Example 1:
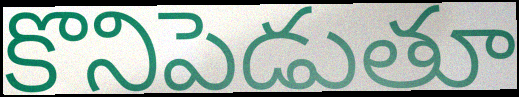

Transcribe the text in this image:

కొనిపెడుతూ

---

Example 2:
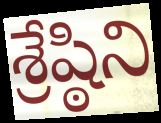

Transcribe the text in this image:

శ్రేష్ఠిని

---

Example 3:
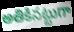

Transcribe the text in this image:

అతికినట్టుగా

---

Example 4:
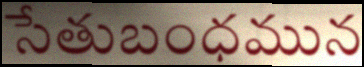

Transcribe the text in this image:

సేతుబంధమున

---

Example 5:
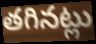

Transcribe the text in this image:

తగినట్లు